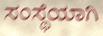
ಸಂಸ್ಥೆಯಾಗಿ